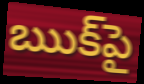
ఋక్‌పై